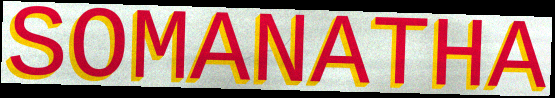
SOMANATHA